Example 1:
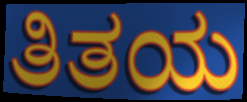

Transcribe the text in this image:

ತಿತಯ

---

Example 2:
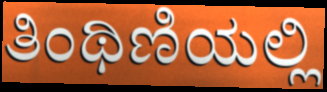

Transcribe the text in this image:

ತಿಂಥಿಣಿಯಲ್ಲಿ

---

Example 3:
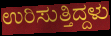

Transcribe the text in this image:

ಉರಿಸುತ್ತಿದ್ದಳು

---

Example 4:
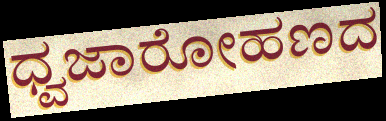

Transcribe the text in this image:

ಧ್ವಜಾರೋಹಣದ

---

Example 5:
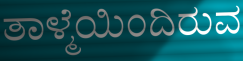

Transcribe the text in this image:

ತಾಳ್ಮೆಯಿಂದಿರುವ